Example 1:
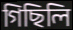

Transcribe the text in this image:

গিছিলি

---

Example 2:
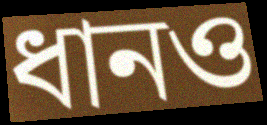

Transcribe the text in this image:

ধানও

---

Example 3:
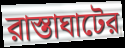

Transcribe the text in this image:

রাস্তাঘাটের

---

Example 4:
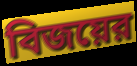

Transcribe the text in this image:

বিজয়ের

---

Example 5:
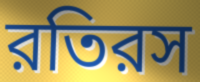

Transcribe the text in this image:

রতিরস